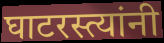
घाटरस्त्यांनी